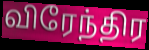
விரேந்திர